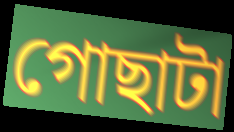
গোছাটা